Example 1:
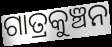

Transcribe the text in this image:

ଗାତ୍ରକୁଞ୍ଚନ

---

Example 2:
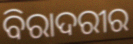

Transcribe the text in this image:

ବିରାଦରୀର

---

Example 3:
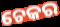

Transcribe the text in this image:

ଚେକର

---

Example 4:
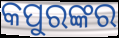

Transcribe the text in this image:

କପୁରଙ୍କର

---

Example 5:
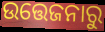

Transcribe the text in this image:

ଉତ୍ତେଜନାରୁ